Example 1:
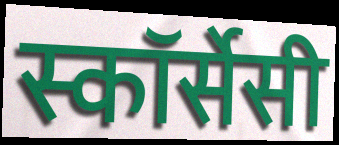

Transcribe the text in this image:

स्कॉर्सेसी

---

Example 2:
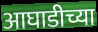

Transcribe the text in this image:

आघाडीच्या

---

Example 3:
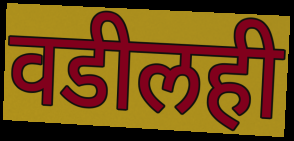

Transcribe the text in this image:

वडीलही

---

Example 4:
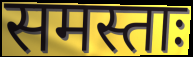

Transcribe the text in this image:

समस्ताः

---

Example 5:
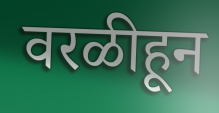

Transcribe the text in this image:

वरळीहून